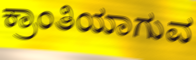
ಕ್ರಾಂತಿಯಾಗುವ